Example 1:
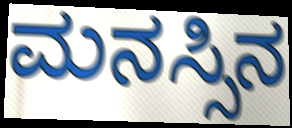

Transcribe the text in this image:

ಮನಸ್ಸಿನ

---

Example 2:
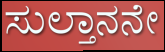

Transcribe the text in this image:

ಸುಲ್ತಾನನೇ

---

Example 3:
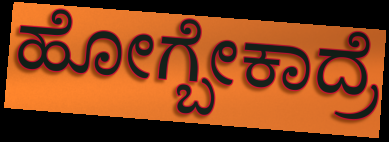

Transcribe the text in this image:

ಹೋಗ್ಬೇಕಾದ್ರೆ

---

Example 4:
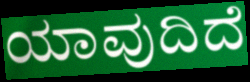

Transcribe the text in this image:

ಯಾವುದಿದೆ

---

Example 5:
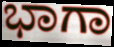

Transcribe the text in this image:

ಭಾಗಾ